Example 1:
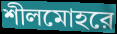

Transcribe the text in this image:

শীলমোহরে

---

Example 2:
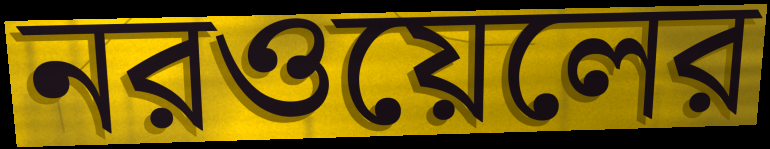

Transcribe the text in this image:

নরওয়েলের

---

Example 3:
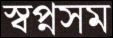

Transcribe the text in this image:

স্বপ্নসম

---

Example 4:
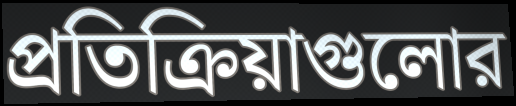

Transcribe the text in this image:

প্রতিক্রিয়াগুলোর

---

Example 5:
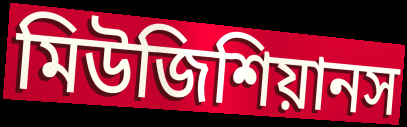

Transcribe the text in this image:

মিউজিশিয়ানস